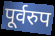
पूर्वरुप